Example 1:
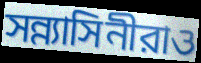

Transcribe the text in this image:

সন্ন্যাসিনীরাও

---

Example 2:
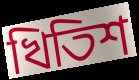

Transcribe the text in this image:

খিতিশ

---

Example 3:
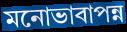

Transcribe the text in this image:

মনোভাবাপন্ন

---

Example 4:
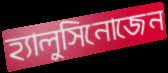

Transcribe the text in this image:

হ্যালুসিনোজেন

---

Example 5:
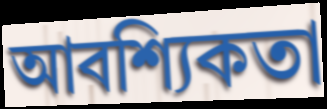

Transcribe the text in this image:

আবশ্যিকতা